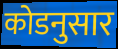
कोडनुसार